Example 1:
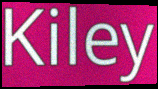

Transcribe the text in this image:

Kiley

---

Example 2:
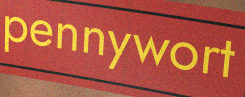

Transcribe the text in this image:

pennywort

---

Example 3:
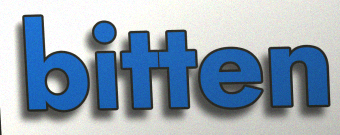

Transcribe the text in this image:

bitten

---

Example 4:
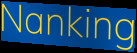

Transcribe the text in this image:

Nanking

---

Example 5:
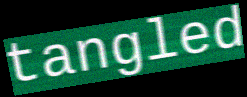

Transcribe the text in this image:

tangled